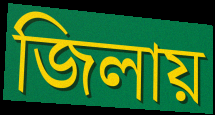
জিলায়